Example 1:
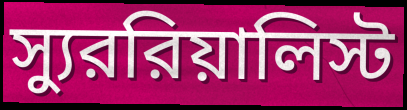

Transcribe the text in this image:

স্যুররিয়ালিস্ট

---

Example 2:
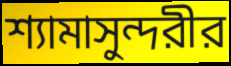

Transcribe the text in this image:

শ্যামাসুন্দরীর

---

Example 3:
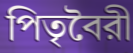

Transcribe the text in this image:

পিতৃবৈরী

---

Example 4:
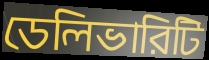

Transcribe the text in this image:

ডেলিভারিটি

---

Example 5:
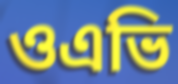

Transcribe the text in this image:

ওএভি